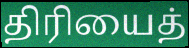
திரியைத்